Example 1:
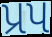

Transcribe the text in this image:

પ્રપ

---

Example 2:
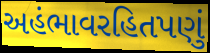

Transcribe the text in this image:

અહંભાવરહિતપણું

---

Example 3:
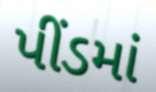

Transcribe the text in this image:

પીંડમાં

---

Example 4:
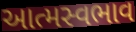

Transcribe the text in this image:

આત્મસ્વભાવ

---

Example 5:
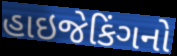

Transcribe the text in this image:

હાઇજેકિંગનો